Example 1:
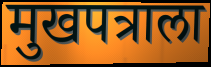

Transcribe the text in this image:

मुखपत्राला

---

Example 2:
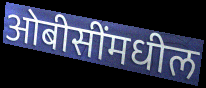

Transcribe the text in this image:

ओबीसींमधील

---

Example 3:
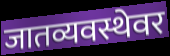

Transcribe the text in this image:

जातव्यवस्थेवर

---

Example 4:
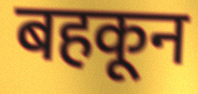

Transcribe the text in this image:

बहकून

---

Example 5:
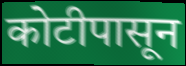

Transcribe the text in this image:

कोटीपासून